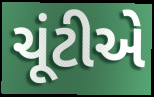
ચૂંટીએ